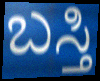
ಬಸ್ತಿ